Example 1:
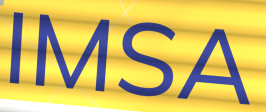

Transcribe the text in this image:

IMSA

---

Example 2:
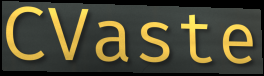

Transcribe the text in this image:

CVaste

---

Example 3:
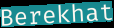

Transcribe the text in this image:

Berekhat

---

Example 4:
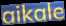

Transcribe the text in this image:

aikale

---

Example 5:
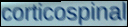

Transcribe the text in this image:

corticospinal